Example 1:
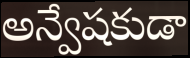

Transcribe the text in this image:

అన్వేషకుడా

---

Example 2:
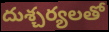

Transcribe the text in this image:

దుశ్చర్యలతో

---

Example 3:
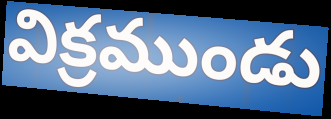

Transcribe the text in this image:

విక్రముండు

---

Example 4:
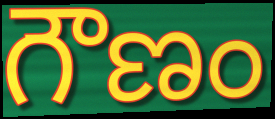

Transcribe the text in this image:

గౌణం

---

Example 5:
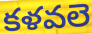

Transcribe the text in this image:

కళవలె